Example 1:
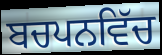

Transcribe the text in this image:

ਬਚਪਨਵਿੱਚ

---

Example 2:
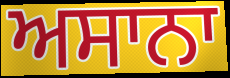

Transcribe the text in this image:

ਅਸਾਨਾ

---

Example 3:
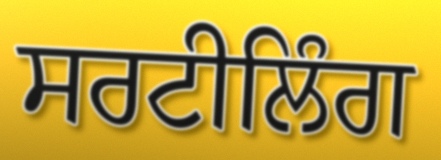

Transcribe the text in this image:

ਸਰਟੀਲਿੰਗ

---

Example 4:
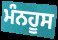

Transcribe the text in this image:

ਮੰਨਹੂਸ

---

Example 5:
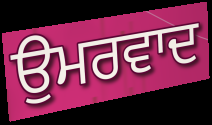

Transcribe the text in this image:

ਉਮਰਵਾਦ